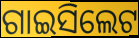
ଗାଇସିଲେଟ